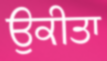
ਉਕੀਤਾ